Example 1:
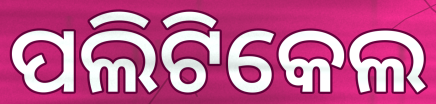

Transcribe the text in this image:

ପଲିଟିକେଲ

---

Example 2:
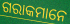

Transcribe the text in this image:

ଗରାକମାନେ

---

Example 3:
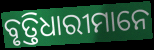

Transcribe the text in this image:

ବୃତ୍ତିଧାରୀମାନେ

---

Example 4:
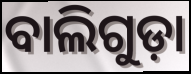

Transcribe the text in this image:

ବାଲିଗୁଡ଼ା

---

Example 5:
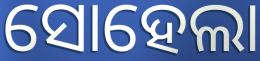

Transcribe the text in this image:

ସୋହେଲା